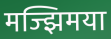
मज्झिमया